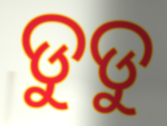
ଡୁଡୁ